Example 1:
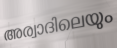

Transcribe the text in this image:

അര്വാദിലെയും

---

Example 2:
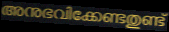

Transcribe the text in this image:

അനുഭവിക്കേണ്ടതുണ്ട്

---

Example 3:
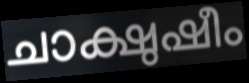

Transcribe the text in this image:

ചാക്ഷുഷീം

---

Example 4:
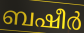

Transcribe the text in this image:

ബഷീർ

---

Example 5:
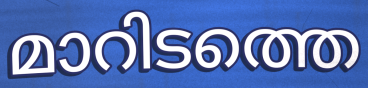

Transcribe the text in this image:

മാറിടത്തെ